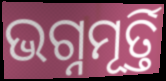
ଭଗ୍ନମୂର୍ତ୍ତି